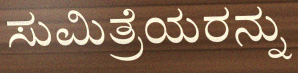
ಸುಮಿತ್ರೆಯರನ್ನು